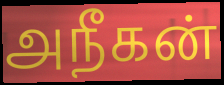
அநீகன்